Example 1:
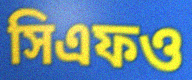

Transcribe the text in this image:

সিএফও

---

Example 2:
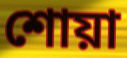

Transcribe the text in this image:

শোয়া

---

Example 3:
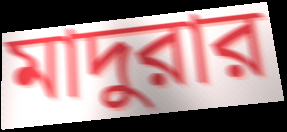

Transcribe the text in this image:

মাদুরার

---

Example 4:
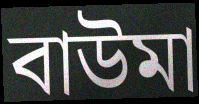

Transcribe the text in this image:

বাউমা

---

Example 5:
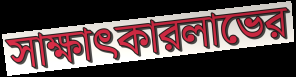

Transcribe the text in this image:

সাক্ষাৎকারলাভের